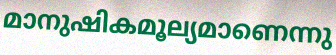
മാനുഷികമൂല്യമാണെന്നു